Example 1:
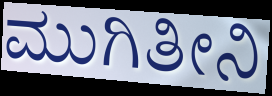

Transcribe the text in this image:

ಮುಗಿತೀನಿ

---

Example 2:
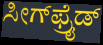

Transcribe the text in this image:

ಸೀಗ್‌ಫ್ರೈಡ್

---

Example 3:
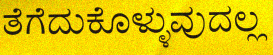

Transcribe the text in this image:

ತೆಗೆದುಕೊಳ್ಳುವುದಲ್ಲ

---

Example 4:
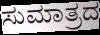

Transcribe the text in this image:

ಸುಮಾತ್ರದ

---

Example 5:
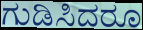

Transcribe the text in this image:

ಗುಡಿಸಿದರೂ